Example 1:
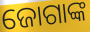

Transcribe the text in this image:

ଜୋଗାଙ୍କ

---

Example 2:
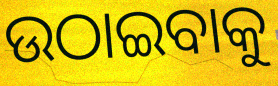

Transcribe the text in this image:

ଉଠାଇବାକୁ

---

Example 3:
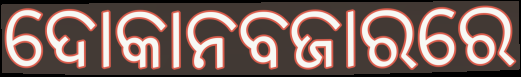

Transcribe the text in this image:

ଦୋକାନବଜାରରେ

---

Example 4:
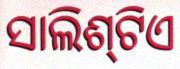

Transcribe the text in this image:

ସାଲିଶ୍‌ଟିଏ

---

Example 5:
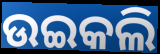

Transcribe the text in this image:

ଉଇକଲି